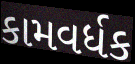
કામવર્ધક